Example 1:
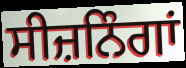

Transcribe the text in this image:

ਸੀਜ਼ਨਿੰਗਾਂ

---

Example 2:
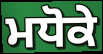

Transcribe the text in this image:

ਮਧੋਕੇ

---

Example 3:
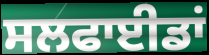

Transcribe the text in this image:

ਸਲਫਾਈਡਾਂ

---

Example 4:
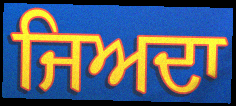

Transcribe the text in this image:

ਜਿਅਦਾ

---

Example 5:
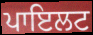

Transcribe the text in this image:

ਪਾਇਲਟ